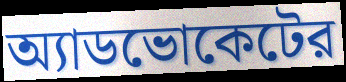
অ্যাডভোকেটের